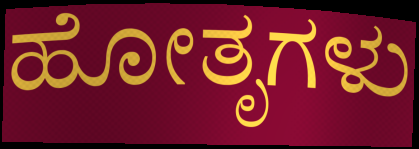
ಹೋತೃಗಳು